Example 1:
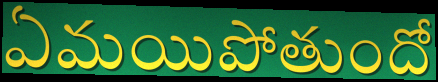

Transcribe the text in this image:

ఏమయిపోతుందో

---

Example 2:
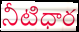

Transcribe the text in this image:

నీటిధార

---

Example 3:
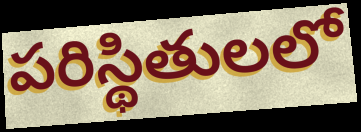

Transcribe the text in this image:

పరిస్థితులలో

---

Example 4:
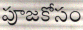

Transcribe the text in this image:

పూజకోసం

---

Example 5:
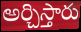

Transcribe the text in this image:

అర్చిస్తారు